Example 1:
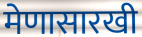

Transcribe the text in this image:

मेणासारखी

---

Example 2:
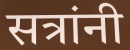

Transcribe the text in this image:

सत्रांनी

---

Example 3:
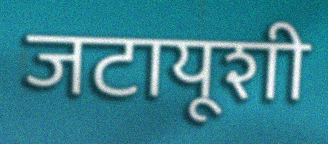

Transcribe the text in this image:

जटायूशी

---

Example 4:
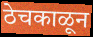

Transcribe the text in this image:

ठेचकाळून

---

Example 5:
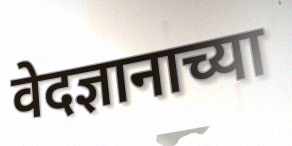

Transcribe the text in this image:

वेदज्ञानाच्या